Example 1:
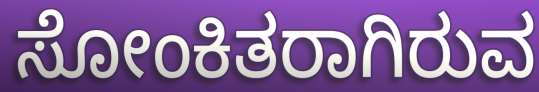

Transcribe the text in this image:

ಸೋಂಕಿತರಾಗಿರುವ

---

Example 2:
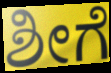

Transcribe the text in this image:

ಶೀಗೆ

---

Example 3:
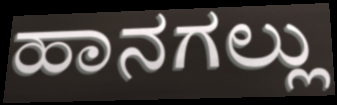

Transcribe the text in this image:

ಹಾನಗಲ್ಲು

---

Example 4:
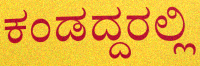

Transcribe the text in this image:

ಕಂಡದ್ದರಲ್ಲಿ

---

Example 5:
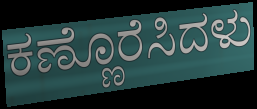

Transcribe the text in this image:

ಕಣ್ಣೊರೆಸಿದಳು